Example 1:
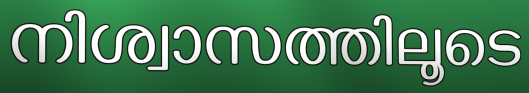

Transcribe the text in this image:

നിശ്വാസത്തിലൂടെ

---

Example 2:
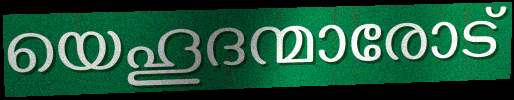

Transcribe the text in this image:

യെഹൂദന്മാരോട്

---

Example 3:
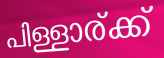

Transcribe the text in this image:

പിള്ളാര്ക്ക്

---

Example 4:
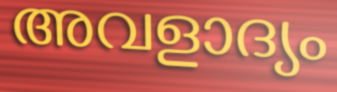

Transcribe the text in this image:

അവളാദ്യം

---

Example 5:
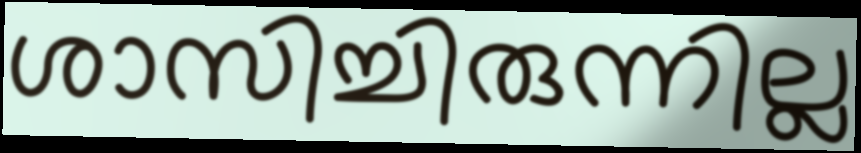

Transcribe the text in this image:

ശാസിച്ചിരുന്നില്ല